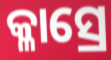
କ୍ଳାସ୍ରେ